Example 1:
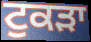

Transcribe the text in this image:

ਟੁਕੜਾ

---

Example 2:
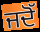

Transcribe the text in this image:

ਜਦੋੱ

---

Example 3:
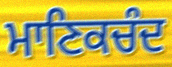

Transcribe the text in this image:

ਮਾਣਿਕਚੰਦ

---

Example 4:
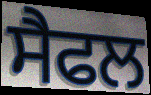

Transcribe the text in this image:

ਸੈਫਲ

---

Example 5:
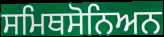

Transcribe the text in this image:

ਸਮਿਥਸੋਨਿਅਨ